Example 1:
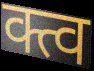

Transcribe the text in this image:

क्त्व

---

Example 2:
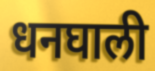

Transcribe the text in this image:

धनघाली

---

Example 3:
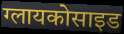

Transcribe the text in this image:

ग्लायकोसाइड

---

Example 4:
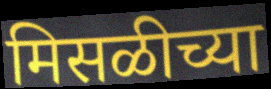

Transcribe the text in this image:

मिसळीच्या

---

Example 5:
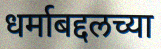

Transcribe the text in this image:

धर्माबद्दलच्या